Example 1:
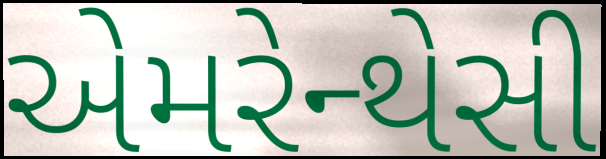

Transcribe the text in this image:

એમરેન્થેસી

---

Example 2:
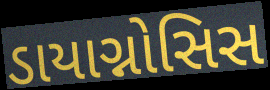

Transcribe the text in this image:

ડાયાગ્નોસિસ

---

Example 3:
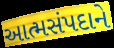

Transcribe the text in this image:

આત્મસંપદાને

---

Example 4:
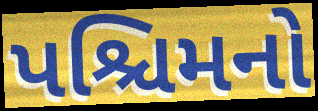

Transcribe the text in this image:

પશ્ચિમનો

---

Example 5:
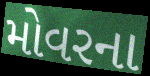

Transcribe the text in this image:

મોવરના